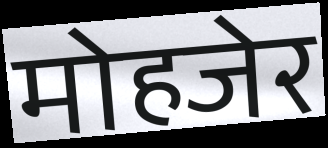
मोहजेर